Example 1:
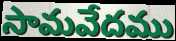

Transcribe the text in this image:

సామవేదము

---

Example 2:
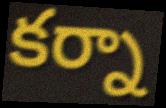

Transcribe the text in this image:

కర్నా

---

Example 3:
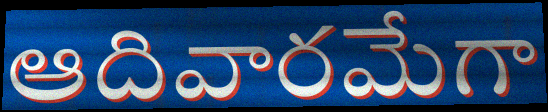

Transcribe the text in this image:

ఆదివారమేగా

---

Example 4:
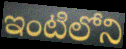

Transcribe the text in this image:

ఇంటిలోని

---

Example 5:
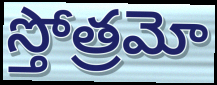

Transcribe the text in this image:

స్తోత్రమో